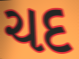
ચદ